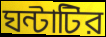
ঘন্টাটির